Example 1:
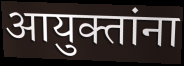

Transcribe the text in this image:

आयुक्‍तांना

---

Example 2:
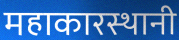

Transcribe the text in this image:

महाकारस्थानी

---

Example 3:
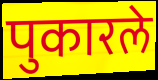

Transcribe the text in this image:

पुकारले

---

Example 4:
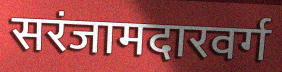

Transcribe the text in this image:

सरंजामदारवर्ग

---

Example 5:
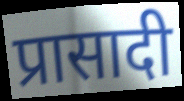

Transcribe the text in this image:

प्रासादी